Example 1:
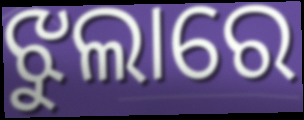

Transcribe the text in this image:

ଝୁଲାରେ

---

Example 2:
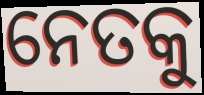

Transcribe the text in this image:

ନେତକୁ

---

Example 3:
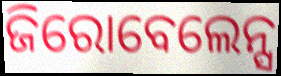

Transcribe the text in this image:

ଜିରୋବେଲେନ୍ସ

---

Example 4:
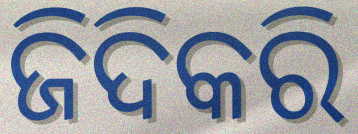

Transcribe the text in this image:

ଜିଦିକରି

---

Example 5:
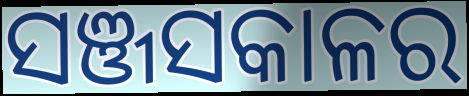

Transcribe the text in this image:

ସଞ୍ଜସକାଳର